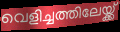
വെളിച്ചത്തിലേയ്ക്ക്